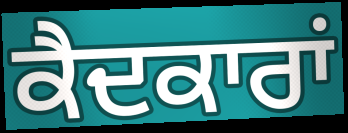
ਕੈਦਕਾਰਾਂ